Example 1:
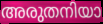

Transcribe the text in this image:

അരുതനിയാ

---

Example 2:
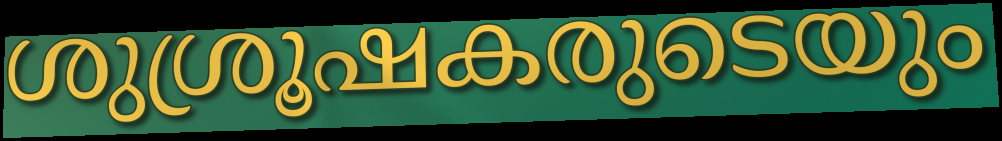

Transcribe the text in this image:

ശുശ്രൂഷകരുടെയും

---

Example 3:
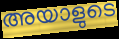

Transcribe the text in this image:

അയാളുടെ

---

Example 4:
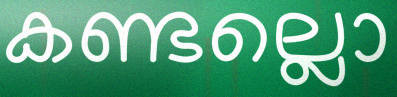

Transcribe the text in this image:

കണ്ടല്ലൊ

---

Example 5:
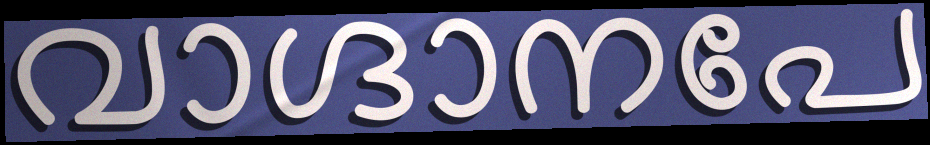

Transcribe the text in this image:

വാഗ്ദാനപേ